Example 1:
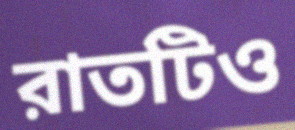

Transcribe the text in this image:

রাতটিও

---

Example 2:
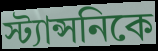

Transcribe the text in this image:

স্ট্যান্সনিকে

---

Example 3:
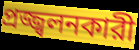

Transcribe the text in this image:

প্রজ্জ্বলনকারী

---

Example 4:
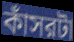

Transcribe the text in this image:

কাঁসরটা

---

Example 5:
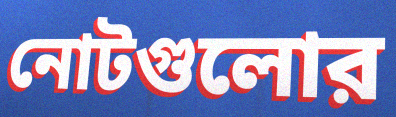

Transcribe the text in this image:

নোটগুলোর